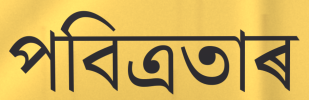
পবিত্ৰতাৰ